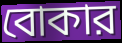
বোকার